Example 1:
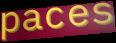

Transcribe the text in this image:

paces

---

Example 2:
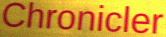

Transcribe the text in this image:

Chronicler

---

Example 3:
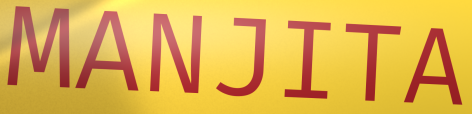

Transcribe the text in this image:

MANJITA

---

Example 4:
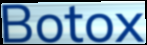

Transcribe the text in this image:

Botox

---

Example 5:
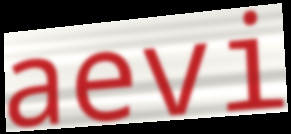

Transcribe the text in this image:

aevi